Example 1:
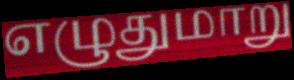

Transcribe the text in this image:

எழுதுமாறு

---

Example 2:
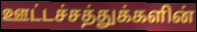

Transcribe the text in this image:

ஊட்டச்சத்துக்களின்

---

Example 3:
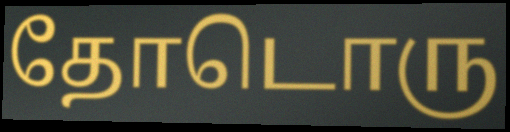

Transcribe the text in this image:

தோடொரு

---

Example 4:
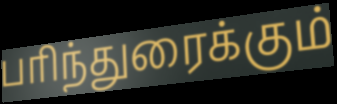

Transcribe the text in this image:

பரிந்துரைக்கும்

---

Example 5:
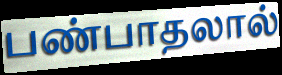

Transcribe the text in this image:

பண்பாதலால்